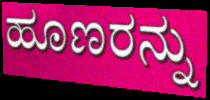
ಹೂಣರನ್ನು